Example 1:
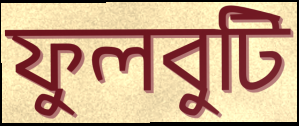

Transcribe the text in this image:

ফুলবুটি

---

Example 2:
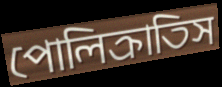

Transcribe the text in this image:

পোলিক্রাতিস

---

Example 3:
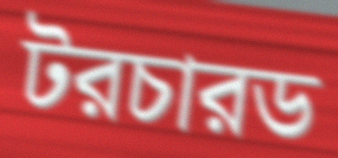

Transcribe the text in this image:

টরচারড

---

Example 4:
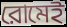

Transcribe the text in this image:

রোমেই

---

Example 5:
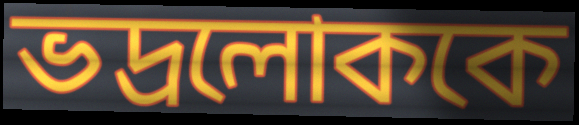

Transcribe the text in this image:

ভদ্রলোককে